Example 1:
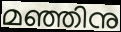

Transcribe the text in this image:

മഞ്ഞിനു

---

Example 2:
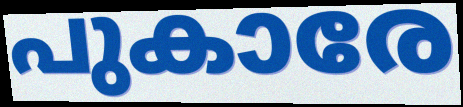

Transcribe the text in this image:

പുകാരേ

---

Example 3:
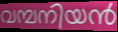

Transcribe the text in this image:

വമ്പനിയൻ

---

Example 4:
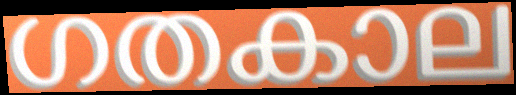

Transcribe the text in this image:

ഗതകാല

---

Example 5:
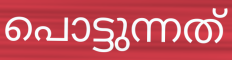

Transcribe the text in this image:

പൊട്ടുന്നത്